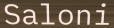
Saloni